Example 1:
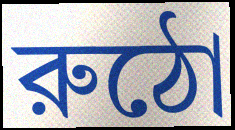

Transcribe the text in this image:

রুঠো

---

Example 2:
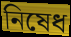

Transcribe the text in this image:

নিষেধ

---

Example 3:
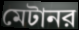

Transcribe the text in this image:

মেটানর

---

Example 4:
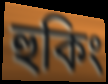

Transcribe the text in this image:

হুকিং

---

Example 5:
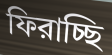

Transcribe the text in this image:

ফিরাচ্ছি